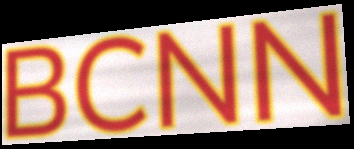
BCNN